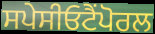
ਸਪੇਸੀਓਟੈਂਪੋਰਲ